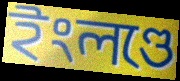
ইংলণ্ডে